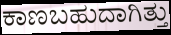
ಕಾಣಬಹುದಾಗಿತ್ತು